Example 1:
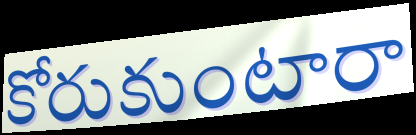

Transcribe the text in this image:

కోరుకుంటారా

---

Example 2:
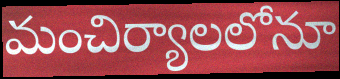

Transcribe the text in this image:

మంచిర్యాలలోనూ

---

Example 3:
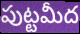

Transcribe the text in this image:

పుట్టమీద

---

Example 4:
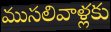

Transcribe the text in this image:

ముసలివాళ్లకు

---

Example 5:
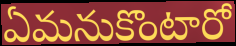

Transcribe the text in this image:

ఏమనుకొంటారో